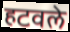
हटवले